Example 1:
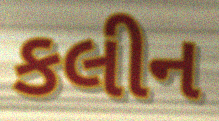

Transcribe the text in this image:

કલીન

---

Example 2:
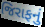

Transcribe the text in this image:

જિરાફનું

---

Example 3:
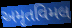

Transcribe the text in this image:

અમૃતવિમલ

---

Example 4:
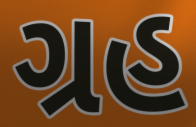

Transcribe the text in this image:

ગ્રહ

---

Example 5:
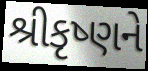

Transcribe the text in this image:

શ્રીકૃષ્ણને